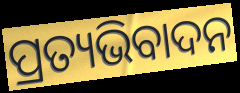
ପ୍ରତ୍ୟଭିବାଦନ